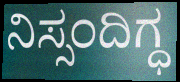
ನಿಸ್ಸಂದಿಗ್ಧ